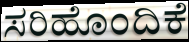
ಸರಿಹೊಂದಿಕೆ